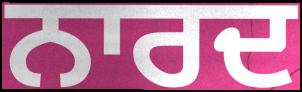
ਨਾਰਦ